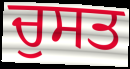
ਚੁਸਤ